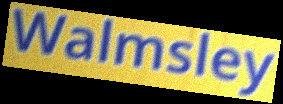
Walmsley